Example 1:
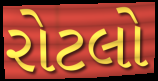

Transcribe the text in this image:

રોટલો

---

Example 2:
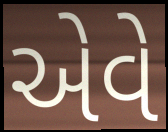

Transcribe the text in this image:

એવે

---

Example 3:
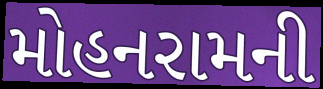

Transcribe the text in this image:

મોહનરામની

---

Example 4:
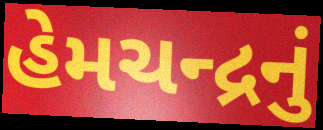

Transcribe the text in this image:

હેમચન્દ્રનું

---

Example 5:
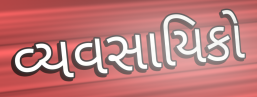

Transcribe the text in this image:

વ્યવસાયિકો